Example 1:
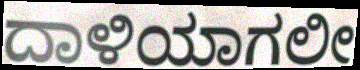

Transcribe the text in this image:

ದಾಳಿಯಾಗಲೀ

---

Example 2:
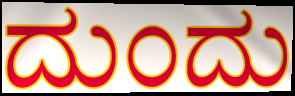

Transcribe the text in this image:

ದುಂದು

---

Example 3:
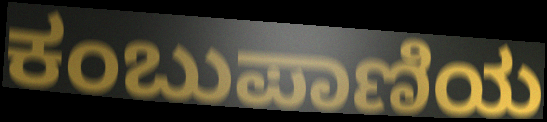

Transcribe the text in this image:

ಕಂಬುಪಾಣಿಯ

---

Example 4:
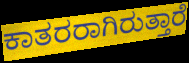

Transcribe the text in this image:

ಕಾತರರಾಗಿರುತ್ತಾರೆ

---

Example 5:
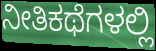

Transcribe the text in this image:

ನೀತಿಕಥೆಗಳಲ್ಲಿ